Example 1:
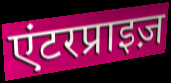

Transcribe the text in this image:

एंटरप्राइज़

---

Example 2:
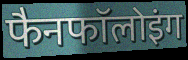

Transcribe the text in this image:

फैनफॉलोइंग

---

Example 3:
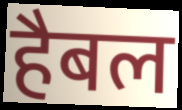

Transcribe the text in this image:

हैबल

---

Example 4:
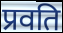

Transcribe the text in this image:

प्रवति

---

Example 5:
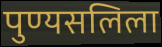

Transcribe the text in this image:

पुण्यसलिला